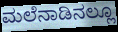
ಮಲೆನಾಡಿನಲ್ಲೂ